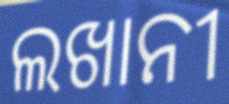
ଲଖାନୀ